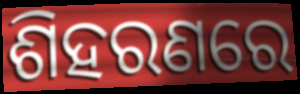
ଶିହରଣରେ